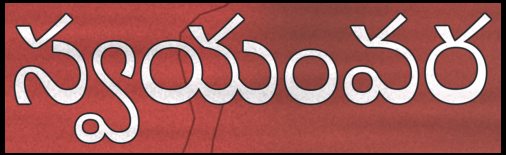
స్వయంవర